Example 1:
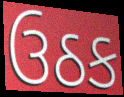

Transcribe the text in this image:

ઉઠક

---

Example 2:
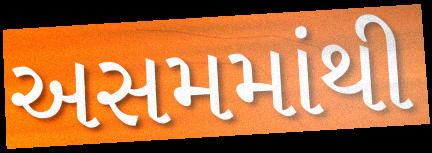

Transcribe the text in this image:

અસમમાંથી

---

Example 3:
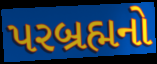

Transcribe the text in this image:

પરબ્રહ્મનો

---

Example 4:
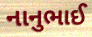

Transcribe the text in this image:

નાનુભાઈ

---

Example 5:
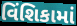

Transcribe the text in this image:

વિંશિકામાં